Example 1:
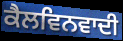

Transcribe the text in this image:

ਕੈਲਵਿਨਵਾਦੀ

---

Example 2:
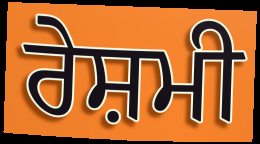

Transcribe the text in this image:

ਰੇਸ਼ਮੀ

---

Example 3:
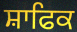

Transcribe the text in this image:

ਸ਼ਾਫਿਕ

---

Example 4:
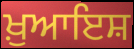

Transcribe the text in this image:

ਖ਼ੁਆਇਸ਼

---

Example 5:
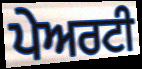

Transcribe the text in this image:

ਪੇਅਰਟੀ